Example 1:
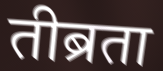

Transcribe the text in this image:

तीब्रता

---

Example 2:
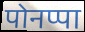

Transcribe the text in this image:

पोनप्‍पा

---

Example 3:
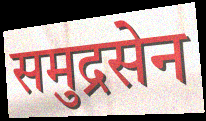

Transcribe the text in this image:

समुद्रसेन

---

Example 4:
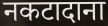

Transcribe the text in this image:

नकटादाना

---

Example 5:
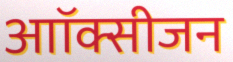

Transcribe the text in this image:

आॉक्सीजन